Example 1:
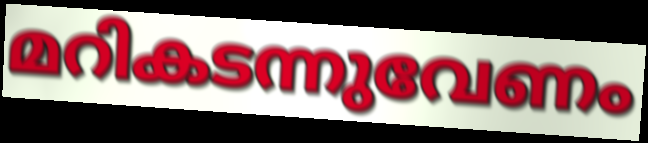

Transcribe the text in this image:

മറികടന്നുവേണം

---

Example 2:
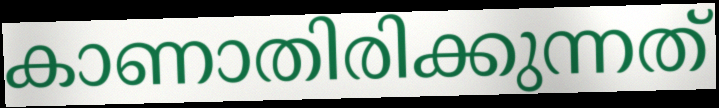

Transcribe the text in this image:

കാണാതിരിക്കുന്നത്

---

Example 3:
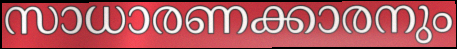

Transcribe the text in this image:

സാധാരണക്കാരനും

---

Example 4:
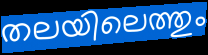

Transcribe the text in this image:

തലയിലെത്തും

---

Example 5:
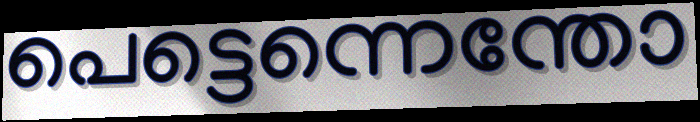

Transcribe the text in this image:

പെട്ടെന്നെന്തോ